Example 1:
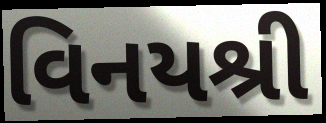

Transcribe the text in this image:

વિનયશ્રી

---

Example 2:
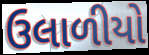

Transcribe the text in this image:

ઉલાળીયો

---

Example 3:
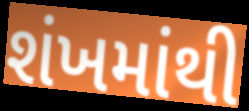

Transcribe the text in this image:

શંખમાંથી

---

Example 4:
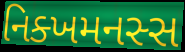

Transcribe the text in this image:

નિક્ખમનસ્સ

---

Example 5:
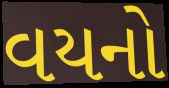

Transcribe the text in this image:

વયનો